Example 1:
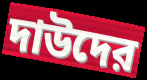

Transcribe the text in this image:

দাউদের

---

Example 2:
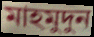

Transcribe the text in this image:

মাহমুদুন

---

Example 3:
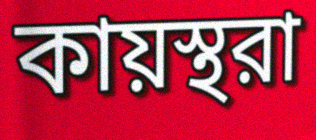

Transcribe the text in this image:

কায়স্থরা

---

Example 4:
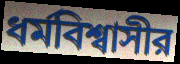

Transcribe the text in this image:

ধর্মবিশ্বাসীর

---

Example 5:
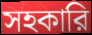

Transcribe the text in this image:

সহকারি